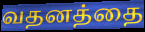
வதனத்தை